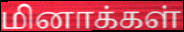
மினாக்கள்